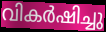
വികർഷിച്ചു